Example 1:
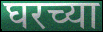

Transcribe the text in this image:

घरच्या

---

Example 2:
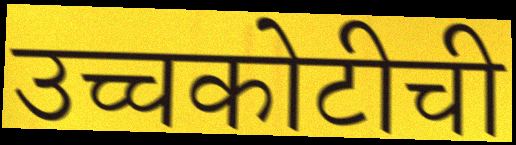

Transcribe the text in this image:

उच्चकोटीची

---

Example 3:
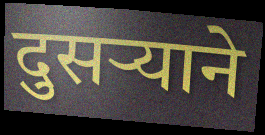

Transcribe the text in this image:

दुसर्‍याने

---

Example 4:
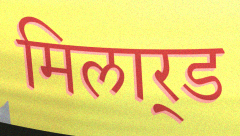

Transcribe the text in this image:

मिलार्ड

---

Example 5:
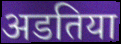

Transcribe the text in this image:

अडतिया